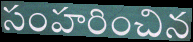
సంహరించిన